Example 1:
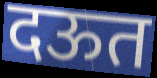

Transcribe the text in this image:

दऊत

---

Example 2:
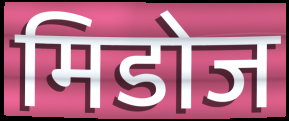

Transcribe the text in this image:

मिडोज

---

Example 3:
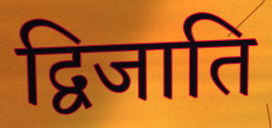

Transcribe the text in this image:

द्विजाति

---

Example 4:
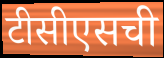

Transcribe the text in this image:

टीसीएसची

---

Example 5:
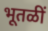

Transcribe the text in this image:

भूतळीं